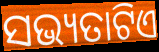
ସଭ୍ୟତାଟିଏ